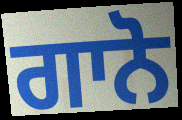
ਗਾਨੋ